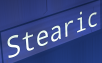
Stearic